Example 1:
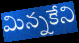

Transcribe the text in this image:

మిన్నకేని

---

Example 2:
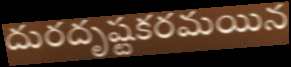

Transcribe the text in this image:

దురదృష్టకరమయిన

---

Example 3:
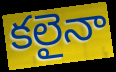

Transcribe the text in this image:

కలైనా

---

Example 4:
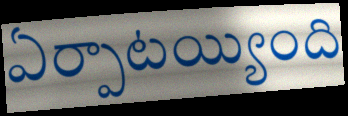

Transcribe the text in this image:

ఏర్పాటయ్యింది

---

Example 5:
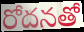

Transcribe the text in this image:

రోదనతో